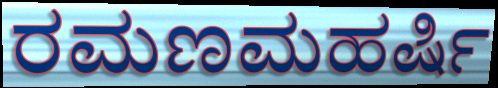
ರಮಣಮಹರ್ಷಿ